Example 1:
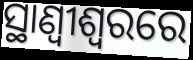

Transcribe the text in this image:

ସ୍ଥାଣ୍ୱୀଶ୍ୱରରେ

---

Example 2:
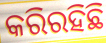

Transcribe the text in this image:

କରିରହିଛି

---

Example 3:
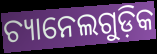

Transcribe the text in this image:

ଚ୍ୟାନେଲଗୁଡ଼ିକ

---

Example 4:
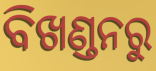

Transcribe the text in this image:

ବିଖଣ୍ଡନରୁ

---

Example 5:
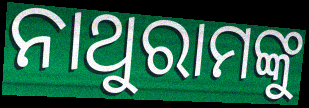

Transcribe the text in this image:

ନାଥୁରାମଙ୍କୁ